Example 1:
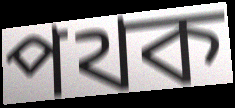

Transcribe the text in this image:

পথক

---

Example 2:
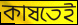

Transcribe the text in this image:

কাষতেই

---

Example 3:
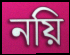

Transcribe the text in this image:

নয়ি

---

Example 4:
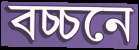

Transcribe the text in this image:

বচ্চনে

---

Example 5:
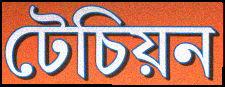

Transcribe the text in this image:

টেচিয়ন